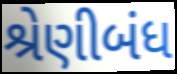
શ્રેણીબંધ